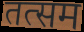
तत्सम